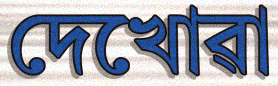
দেখোৱা